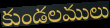
కుండలములు